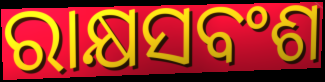
ରାକ୍ଷସବଂଶ